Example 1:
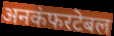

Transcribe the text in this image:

अनकंफरटेबल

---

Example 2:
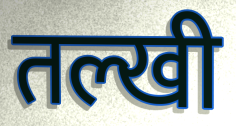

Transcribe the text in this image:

तल्‍खी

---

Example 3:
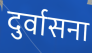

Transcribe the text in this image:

दुर्वासना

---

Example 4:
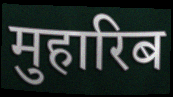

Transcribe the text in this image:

मुहारिब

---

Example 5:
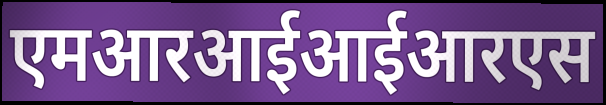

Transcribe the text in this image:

एमआरआईआईआरएस